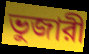
ভুজারী